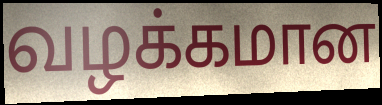
வழக்கமான